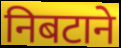
निबटाने